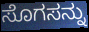
ಸೊಗಸನ್ನು